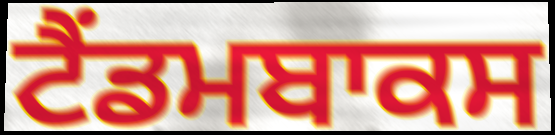
ਟੈਂਡਮਬਾਕਸ